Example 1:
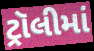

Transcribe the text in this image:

ટ્રૉલીમાં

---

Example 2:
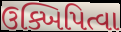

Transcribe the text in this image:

ઉક્ખિપિત્વા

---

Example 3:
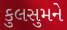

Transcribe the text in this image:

કુલસુમને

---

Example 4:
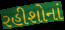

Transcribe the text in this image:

રહીશોનાં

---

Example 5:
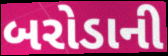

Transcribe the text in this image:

બરોડાની